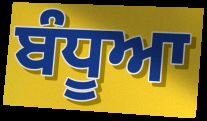
ਬੰਧੂਆ